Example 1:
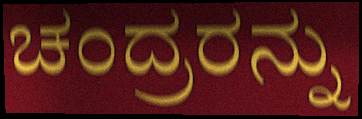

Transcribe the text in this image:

ಚಂದ್ರರನ್ನು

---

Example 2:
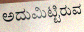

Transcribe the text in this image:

ಅದುಮಿಟ್ಟಿರುವ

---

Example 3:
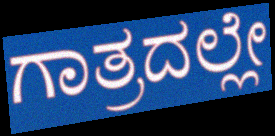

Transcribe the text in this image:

ಗಾತ್ರದಲ್ಲೇ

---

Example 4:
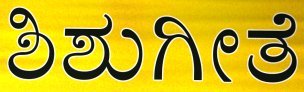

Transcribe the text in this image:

ಶಿಶುಗೀತೆ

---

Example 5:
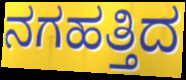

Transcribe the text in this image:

ನಗಹತ್ತಿದ